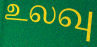
உலவு